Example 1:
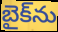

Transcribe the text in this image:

బైక్‌ను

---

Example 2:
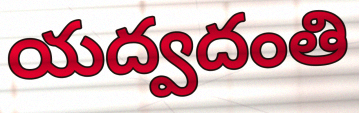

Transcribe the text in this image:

యద్వదంతి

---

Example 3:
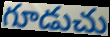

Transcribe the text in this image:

గూడుచు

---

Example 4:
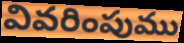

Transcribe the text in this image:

వివరింపుము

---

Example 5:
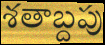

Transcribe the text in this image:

శతాబ్దపు